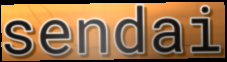
sendai